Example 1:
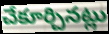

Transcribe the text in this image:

చేకూర్చినట్లు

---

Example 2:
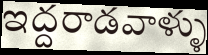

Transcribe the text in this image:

ఇద్దరాడవాళ్ళు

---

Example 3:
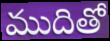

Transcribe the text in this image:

ముదితో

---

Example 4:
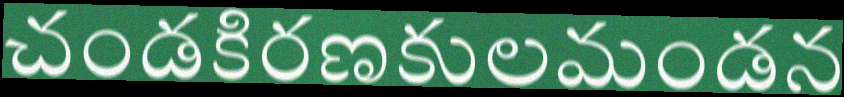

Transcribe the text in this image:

చండకిరణకులమండన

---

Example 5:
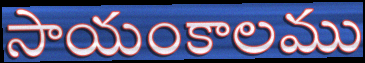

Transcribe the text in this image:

సాయంకాలము